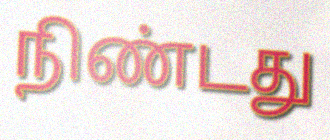
நிண்டது